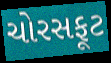
ચોરસફૂટ